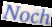
Noch